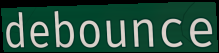
debounce